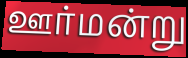
ஊர்மன்று